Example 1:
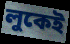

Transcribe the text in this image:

লুকেই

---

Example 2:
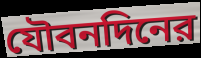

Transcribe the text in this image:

যৌবনদিনের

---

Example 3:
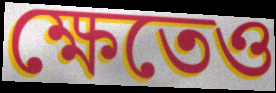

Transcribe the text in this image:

ক্ষেতেও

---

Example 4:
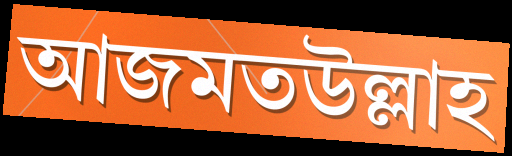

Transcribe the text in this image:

আজমতউল্লাহ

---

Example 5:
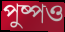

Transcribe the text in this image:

পুষ্পও